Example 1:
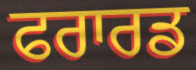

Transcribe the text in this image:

ਫਰਾਰਡ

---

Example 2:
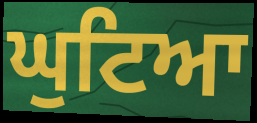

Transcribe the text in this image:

ਘੁਟਿਆ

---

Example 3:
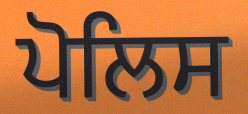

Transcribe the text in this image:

ਪੋਲਿਸ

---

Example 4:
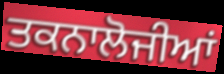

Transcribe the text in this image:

ਤਕਨਾਲੋਜੀਆਂ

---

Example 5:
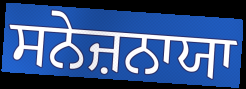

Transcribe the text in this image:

ਸਨੇਜ਼ਨਾਯਾ